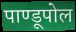
पाण्डूपोल